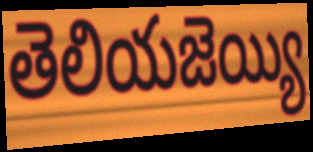
తెలియజెయ్యి